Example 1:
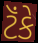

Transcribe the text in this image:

ટૅંકે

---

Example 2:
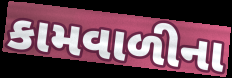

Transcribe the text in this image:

કામવાળીના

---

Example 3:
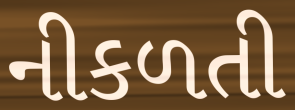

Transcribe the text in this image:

નીકળતી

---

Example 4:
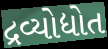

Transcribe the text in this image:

દ્રવ્યોદ્યોત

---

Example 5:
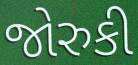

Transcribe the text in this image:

જોરુકી